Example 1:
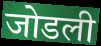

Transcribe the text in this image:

जोडली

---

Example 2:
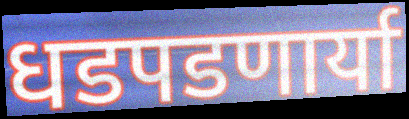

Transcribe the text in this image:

धडपडणार्या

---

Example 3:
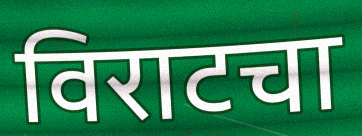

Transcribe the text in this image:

विराटचा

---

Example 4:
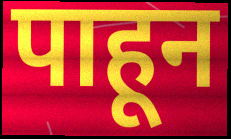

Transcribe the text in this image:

पाहून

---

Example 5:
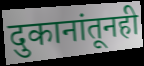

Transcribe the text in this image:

दुकानांतूनही